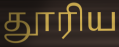
தூரிய